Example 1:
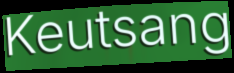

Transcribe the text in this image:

Keutsang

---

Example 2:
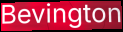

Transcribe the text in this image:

Bevington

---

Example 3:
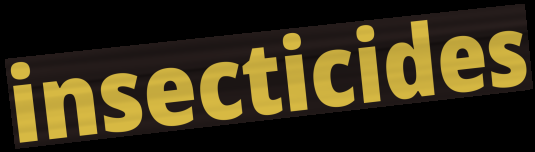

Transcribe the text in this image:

insecticides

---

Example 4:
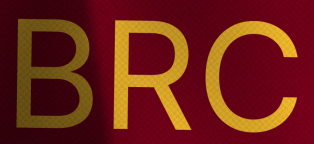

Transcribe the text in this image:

BRC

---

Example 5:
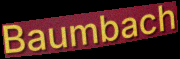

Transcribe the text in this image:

Baumbach